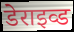
डेराइव्ड